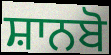
ਸ਼ਾਨਬੋ